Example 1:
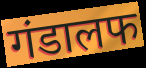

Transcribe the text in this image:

गंडालफ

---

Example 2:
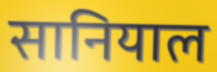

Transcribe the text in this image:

सानियाल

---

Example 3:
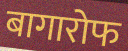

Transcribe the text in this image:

बागारोफ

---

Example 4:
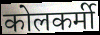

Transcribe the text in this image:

कोलकर्मी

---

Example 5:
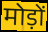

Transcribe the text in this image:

मोड़ों